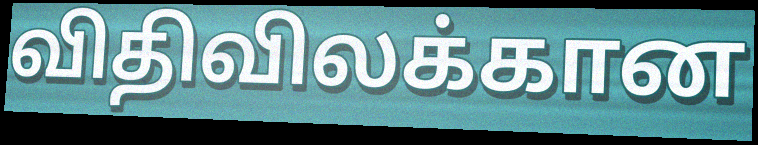
விதிவிலக்கான